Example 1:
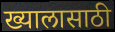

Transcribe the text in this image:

ख्यालासाठी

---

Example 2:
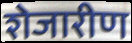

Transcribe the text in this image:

शेजारीण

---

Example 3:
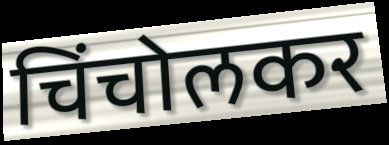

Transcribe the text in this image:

चिंचोलकर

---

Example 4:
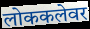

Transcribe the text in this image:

लोककलेवर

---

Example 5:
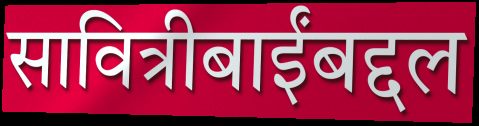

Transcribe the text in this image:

सावित्रीबाईंबद्दल